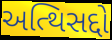
અત્થિસદ્દો